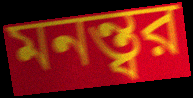
মনন্ত্বর